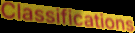
Classifications